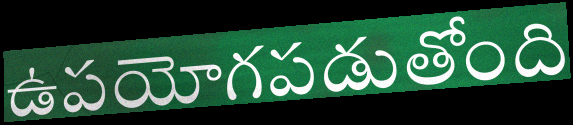
ఉపయోగపడుతోంది